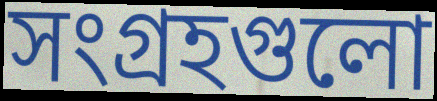
সংগ্রহগুলো